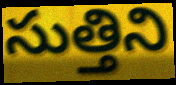
సుత్తిని